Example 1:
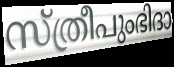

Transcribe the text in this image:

സ്ത്രീപുംഭിദാ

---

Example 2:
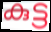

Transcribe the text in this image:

കുട്ട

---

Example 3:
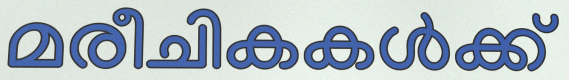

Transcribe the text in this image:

മരീചികകൾക്ക്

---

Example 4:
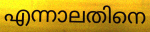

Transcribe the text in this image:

എന്നാലതിനെ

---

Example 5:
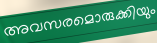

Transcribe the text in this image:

അവസരമൊരുക്കിയും